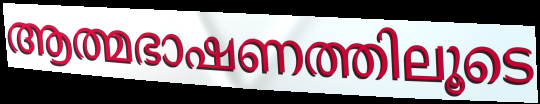
ആത്മഭാഷണത്തിലൂടെ